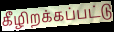
கீழிறக்கப்பட்டு